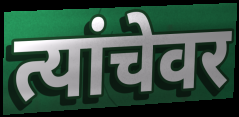
त्यांचेवर